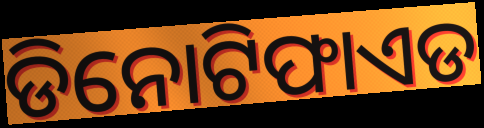
ଡିନୋଟିଫାଏଡ